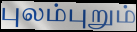
புலம்புறும்